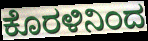
ಕೊರಳಿನಿಂದ